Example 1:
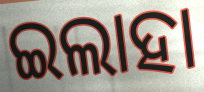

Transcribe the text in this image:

ଇଲାହା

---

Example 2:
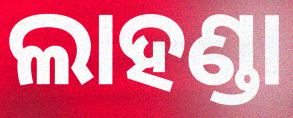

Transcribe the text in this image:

ଲାହଣ୍ଡା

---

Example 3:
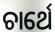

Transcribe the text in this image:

ଚାର୍ଥେ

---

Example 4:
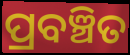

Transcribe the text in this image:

ପ୍ରବଞ୍ଚିତ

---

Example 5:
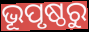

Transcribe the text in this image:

ଭୂପୃଷ୍ଠରୁ